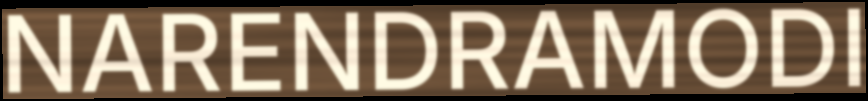
NARENDRAMODI